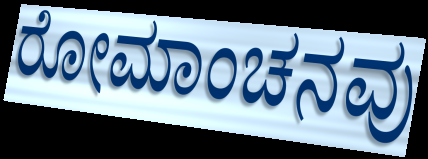
ರೋಮಾಂಚನವು